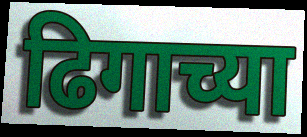
ढिगाच्या